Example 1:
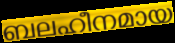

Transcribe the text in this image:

ബലഹീനമായ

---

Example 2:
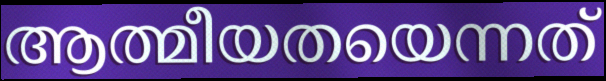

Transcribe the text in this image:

ആത്മീയതയെന്നത്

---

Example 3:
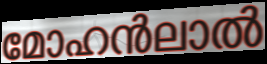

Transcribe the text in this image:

മോഹൻലാൽ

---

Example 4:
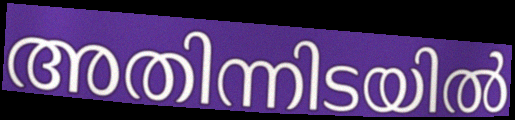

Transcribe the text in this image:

അതിന്നിടയിൽ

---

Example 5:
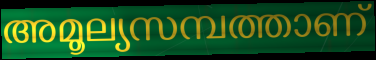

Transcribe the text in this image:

അമൂല്യസമ്പത്താണ്